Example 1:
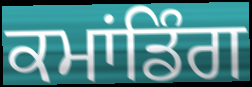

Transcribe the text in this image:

ਕਮਾਂਡਿੰਗ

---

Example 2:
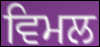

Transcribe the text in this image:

ਵਿਮਲ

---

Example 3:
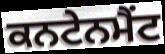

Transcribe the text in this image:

ਕਨਟੇਨਮੈਂਟ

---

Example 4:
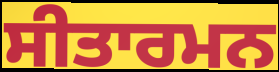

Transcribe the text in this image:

ਸੀਤਾਰਮਨ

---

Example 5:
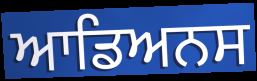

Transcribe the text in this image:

ਆਡਿਅਨਸ